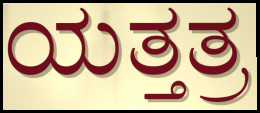
ಯತ್ತತ್ರ